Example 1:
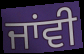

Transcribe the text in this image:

ਜਾਂਵੀ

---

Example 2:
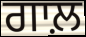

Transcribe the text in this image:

ਗਾਲ਼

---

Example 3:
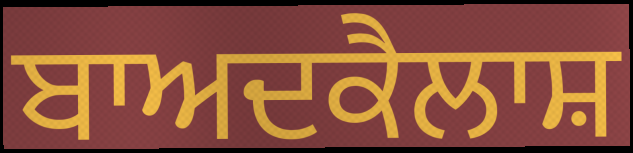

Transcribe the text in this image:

ਬਾਅਦਕੈਲਾਸ਼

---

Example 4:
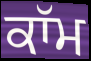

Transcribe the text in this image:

ਕਾੱਮ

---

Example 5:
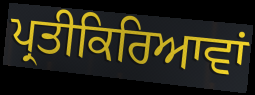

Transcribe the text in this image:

ਪ੍ਰਤੀਕਿਰਿਆਵਾਂ